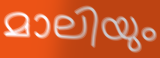
മാലിയും